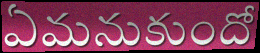
ఏమనుకుందో